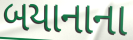
બયાનાના